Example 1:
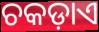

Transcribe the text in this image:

ଚକଡ଼ାଏ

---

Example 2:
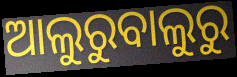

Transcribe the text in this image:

ଆଲୁରୁବାଲୁରୁ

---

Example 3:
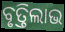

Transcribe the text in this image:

ବୃତ୍ତିଲାଭ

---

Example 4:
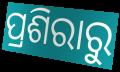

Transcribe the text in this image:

ପ୍ରଶିରାରୁ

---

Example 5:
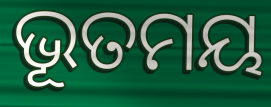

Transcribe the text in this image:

ଭୂତମୟ